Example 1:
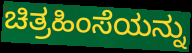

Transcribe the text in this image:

ಚಿತ್ರಹಿಂಸೆಯನ್ನು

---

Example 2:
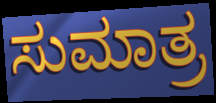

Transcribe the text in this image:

ಸುಮಾತ್ರ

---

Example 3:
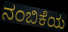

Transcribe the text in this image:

ನಂಬಿಕೆಯ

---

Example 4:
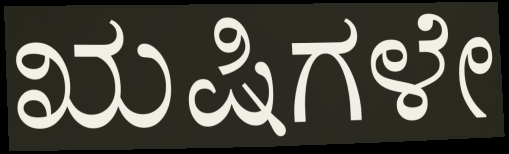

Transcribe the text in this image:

ಋಷಿಗಳೇ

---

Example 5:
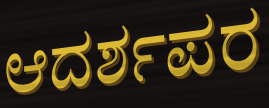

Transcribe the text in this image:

ಆದರ್ಶಪರ